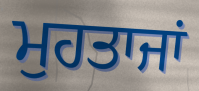
ਮੁਹਤਾਜਾਂ